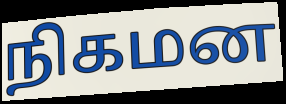
நிகமன